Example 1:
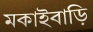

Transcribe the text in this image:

মকাইবাড়ি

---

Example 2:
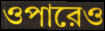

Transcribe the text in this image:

ওপারেও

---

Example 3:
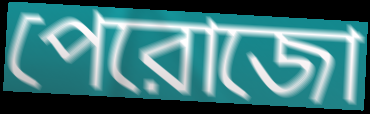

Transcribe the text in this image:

পেরোজো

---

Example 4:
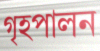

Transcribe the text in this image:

গৃহপালন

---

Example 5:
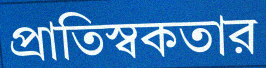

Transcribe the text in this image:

প্রাতিস্বকতার